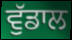
ਵੁੱਡਾਲ